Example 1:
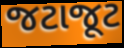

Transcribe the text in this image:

જટાજૂટ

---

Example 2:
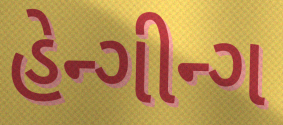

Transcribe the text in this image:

હેન્ગીન્ગ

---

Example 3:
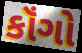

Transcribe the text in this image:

કૉંગો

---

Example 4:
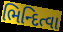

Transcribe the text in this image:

ભિન્દિત્વા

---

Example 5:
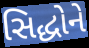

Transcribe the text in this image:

સિદ્ધોને